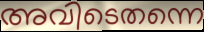
അവിടെതന്നെ